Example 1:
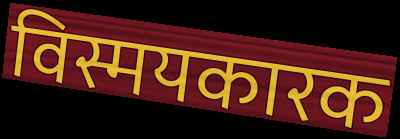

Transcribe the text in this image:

विस्मयकारक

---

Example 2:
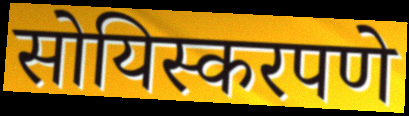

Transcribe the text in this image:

सोयिस्करपणे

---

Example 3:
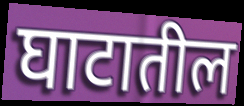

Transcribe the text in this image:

घाटातील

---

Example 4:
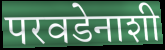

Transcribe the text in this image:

परवडेनाशी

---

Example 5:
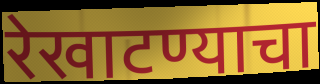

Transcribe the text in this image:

रेखाटण्याचा